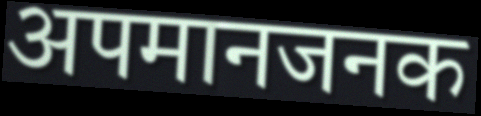
अपमानजनक